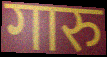
गारु